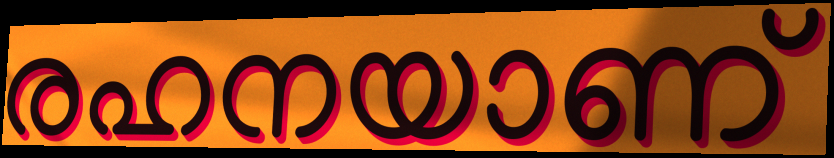
രഹനയാണ്